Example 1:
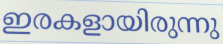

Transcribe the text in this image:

ഇരകളായിരുന്നു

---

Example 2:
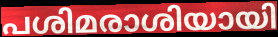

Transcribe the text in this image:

പശിമരാശിയായി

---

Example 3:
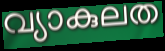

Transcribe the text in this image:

വ്യാകുലത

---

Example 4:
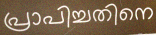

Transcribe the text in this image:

പ്രാപിച്ചതിനെ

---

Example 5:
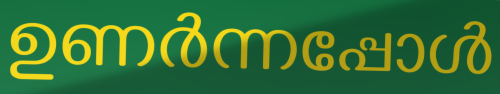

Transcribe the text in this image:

ഉണർന്നപ്പോൾ